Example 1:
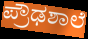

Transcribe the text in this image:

ಪ್ರೌಢಶಾಲೆ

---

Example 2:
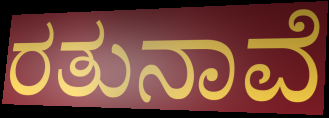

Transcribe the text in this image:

ರತುನಾವೆ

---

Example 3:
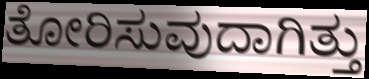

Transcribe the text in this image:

ತೋರಿಸುವುದಾಗಿತ್ತು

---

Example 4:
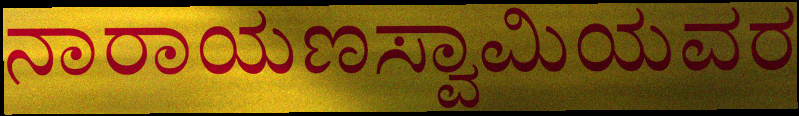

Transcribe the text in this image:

ನಾರಾಯಣಸ್ವಾಮಿಯವರ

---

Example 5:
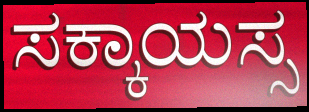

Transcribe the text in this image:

ಸಕ್ಕಾಯಸ್ಸ